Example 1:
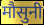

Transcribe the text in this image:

मौसुनी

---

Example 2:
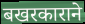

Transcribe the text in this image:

बखरकाराने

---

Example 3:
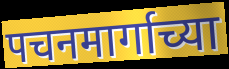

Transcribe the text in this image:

पचनमार्गाच्या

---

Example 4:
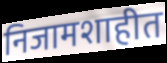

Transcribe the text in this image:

निजामशाहीत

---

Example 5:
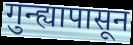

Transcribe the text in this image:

गुन्ह्यापासून